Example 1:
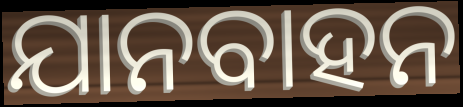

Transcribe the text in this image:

ଯାନବାହନ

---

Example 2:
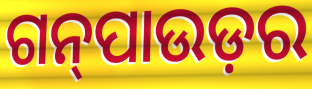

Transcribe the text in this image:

ଗନ୍‍ପାଉଡ଼ର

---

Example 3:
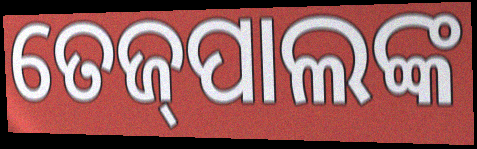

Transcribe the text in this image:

ତେଜ୍‌ପାଲଙ୍କ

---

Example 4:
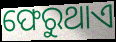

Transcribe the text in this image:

ଫେରୁଥାଏ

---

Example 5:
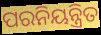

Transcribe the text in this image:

ପରନିୟନ୍ତ୍ରିତ